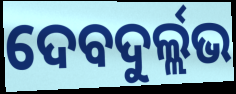
ଦେବଦୁର୍ଲ୍ଲଭ